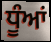
ਧੂੰਆਂ